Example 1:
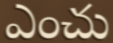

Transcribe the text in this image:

ఎంచు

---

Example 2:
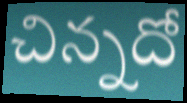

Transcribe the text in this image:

చిన్నదో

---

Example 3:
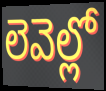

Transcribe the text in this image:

లెవెల్లో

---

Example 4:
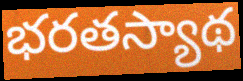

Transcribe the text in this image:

భరతస్యాథ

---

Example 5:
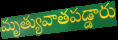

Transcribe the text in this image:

మృత్యువాతపడ్డారు